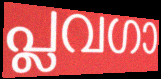
പ്ലവഗാ